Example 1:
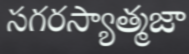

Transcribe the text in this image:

సగరస్యాత్మజా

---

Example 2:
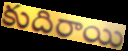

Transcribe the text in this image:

కుదిరాయి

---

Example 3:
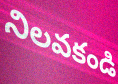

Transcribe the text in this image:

నిలవకండి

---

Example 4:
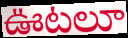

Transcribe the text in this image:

ఊటలూ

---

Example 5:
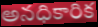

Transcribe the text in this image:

అనధికారిక